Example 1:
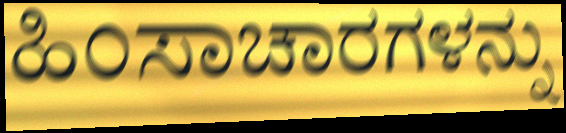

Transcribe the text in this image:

ಹಿಂಸಾಚಾರಗಳನ್ನು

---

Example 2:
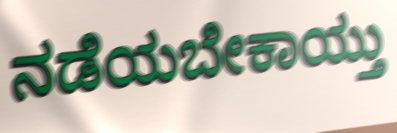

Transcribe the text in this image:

ನಡೆಯಬೇಕಾಯ್ತು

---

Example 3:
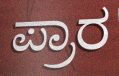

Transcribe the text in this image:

ಪ್ರಾರ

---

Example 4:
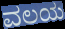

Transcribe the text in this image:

ವಲಯ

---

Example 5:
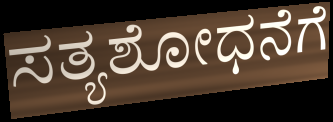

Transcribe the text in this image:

ಸತ್ಯಶೋಧನೆಗೆ